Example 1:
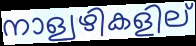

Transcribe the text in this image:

നാള്വഴികളില്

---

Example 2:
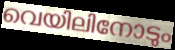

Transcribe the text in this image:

വെയിലിനോടും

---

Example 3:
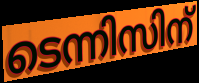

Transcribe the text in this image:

ടെന്നിസിന്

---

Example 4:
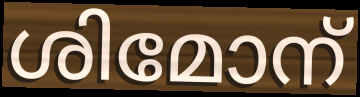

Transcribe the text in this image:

ശിമോന്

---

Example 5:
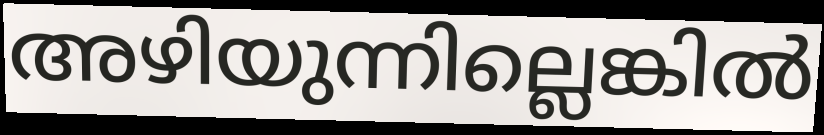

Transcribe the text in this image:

അഴിയുന്നില്ലെങ്കിൽ